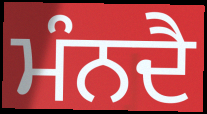
ਮੰਨਦੈ